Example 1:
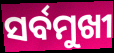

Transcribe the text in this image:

ସର୍ବମୁଖୀ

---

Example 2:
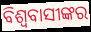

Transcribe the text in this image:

ବିଶ୍ୱବାସୀଙ୍କର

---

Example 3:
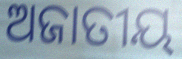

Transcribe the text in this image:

ଅଜାତୀୟ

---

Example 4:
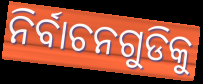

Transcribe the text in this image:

ନିର୍ବାଚନଗୁଡିକୁ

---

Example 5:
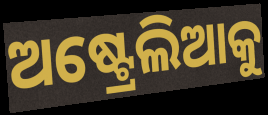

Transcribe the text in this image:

ଅଷ୍ଟ୍ରେଲିଆକୁ